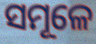
ସମୂଳେ